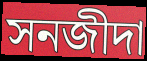
সনজীদা